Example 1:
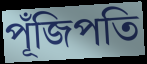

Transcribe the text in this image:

পূঁজিপতি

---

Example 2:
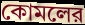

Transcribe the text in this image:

কোমলের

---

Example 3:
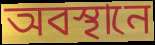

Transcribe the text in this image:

অবস্থানে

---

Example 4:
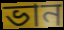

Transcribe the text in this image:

ভান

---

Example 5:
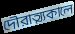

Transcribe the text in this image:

দৌরাত্ম্যকালে